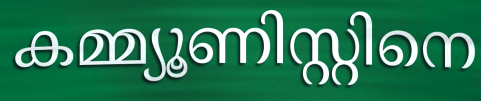
കമ്മ്യൂണിസ്റ്റിനെ